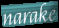
narake